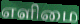
எளிமை